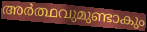
അർത്ഥവുമുണ്ടാകും